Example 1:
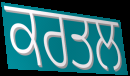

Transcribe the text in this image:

ਕਰਤਲ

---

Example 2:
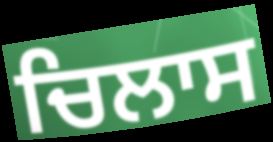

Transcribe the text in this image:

ਚਿਲਾਸ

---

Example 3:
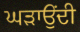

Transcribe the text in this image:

ਘੜਾਉਂਦੀ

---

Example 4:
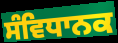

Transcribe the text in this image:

ਸੰਵਿਧਾਨਕ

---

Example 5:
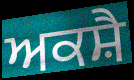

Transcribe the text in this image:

ਅਕਸ਼ੈ